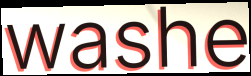
washe